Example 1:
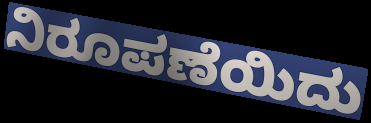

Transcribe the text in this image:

ನಿರೂಪಣೆಯಿದು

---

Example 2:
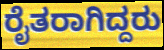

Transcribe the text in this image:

ರೈತರಾಗಿದ್ದರು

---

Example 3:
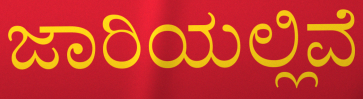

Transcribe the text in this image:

ಜಾರಿಯಲ್ಲಿವೆ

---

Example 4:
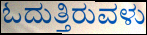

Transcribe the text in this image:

ಓದುತ್ತಿರುವಳು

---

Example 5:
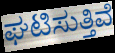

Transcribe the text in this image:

ಘಟಿಸುತ್ತಿವೆ